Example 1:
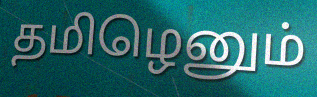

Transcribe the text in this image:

தமிழெனும்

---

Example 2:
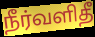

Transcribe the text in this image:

நீர்வளிதீ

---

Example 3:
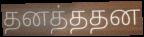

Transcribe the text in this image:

தனத்ததன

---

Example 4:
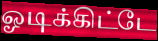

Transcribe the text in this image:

ஓடிக்கிட்டே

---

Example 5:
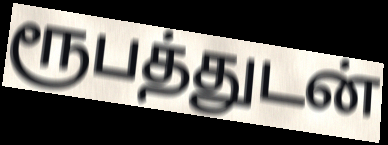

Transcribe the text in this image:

ரூபத்துடன்